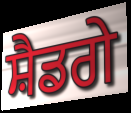
ਸ਼ੈਡਗੇ